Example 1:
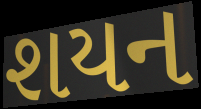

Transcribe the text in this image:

શયન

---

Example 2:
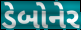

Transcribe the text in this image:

ડેબોનેર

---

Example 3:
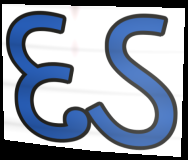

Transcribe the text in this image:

દડ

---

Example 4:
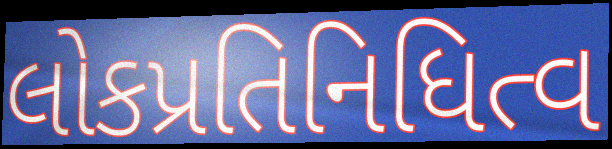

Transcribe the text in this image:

લોકપ્રતિનિધિત્વ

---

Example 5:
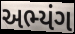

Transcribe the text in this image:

અભ્યંગ